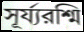
সূর্য্যরশ্মি